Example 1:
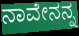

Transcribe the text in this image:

ನಾವೇನನ್ನ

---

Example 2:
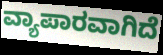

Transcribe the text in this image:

ವ್ಯಾಪಾರವಾಗಿದೆ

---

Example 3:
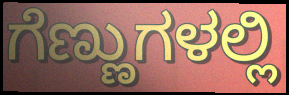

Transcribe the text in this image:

ಗೆಣ್ಣುಗಳಲ್ಲಿ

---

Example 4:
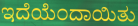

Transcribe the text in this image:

ಇದೆಯೆಂದಾಯಿತು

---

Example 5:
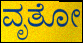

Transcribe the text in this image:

ವೃತೋ